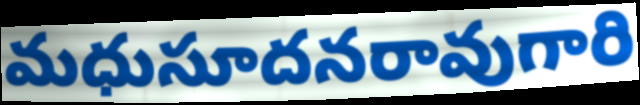
మధుసూదనరావుగారి